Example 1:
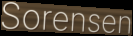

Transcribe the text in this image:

Sorensen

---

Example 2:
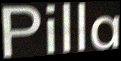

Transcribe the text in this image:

Pilla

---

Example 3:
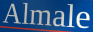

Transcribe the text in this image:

Almale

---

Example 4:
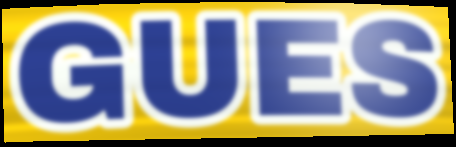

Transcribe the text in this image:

GUES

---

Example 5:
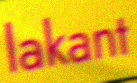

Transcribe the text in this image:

lakant